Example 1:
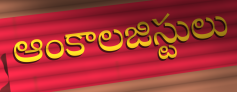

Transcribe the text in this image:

ఆంకాలజిస్టులు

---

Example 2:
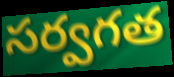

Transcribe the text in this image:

సర్వగత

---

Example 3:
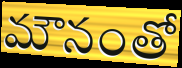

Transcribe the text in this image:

మౌనంతో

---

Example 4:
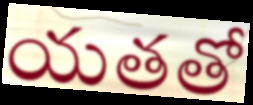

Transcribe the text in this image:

యతతో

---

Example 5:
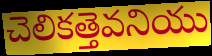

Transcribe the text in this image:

చెలికత్తెవనియు